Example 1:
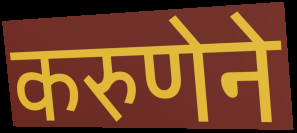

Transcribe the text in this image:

करुणेने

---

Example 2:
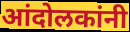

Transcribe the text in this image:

आंदोलकांनी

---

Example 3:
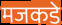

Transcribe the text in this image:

मजकडे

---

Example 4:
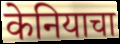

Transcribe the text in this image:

केनियाचा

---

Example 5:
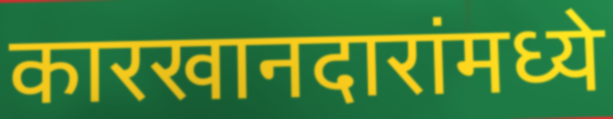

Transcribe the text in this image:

कारखानदारांमध्ये